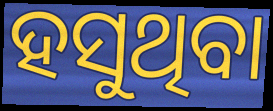
ହସୁଥିବା